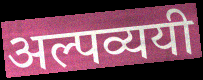
अल्पव्ययी